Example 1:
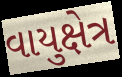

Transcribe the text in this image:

વાયુક્ષેત્ર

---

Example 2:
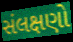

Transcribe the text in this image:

સંલક્ષણો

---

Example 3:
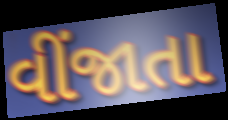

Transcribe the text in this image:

વીંજાતા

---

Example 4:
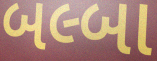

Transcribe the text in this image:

બલ્બા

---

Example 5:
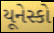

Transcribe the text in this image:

યૂનેસ્કો